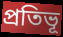
প্ৰতিভূ